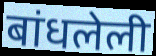
बांधलेली